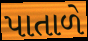
પાતાળે